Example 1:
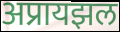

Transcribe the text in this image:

अप्रायझल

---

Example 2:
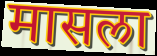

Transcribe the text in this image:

मासला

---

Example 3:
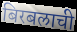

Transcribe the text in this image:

बिरबलाची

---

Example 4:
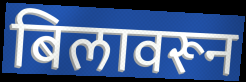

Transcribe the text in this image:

बिलावरून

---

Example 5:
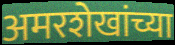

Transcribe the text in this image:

अमरशेखांच्या